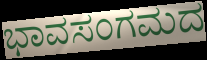
ಭಾವಸಂಗಮದ